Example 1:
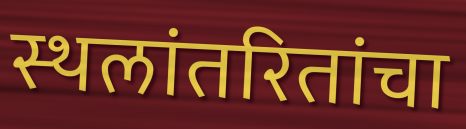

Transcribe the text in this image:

स्थलांतरितांचा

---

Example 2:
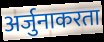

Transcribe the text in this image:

अर्जुनाकरता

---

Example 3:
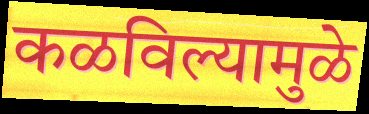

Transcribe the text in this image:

कळविल्यामुळे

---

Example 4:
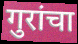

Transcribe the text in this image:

गुरांचा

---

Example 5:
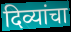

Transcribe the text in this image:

दिव्यांचा